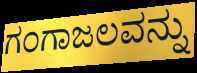
ಗಂಗಾಜಲವನ್ನು